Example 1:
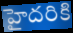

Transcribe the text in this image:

హైదరికి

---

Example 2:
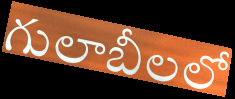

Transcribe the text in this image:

గులాబీలలో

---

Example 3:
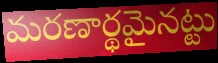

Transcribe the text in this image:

మరణార్థమైనట్టు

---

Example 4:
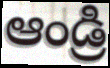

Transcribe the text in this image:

ఆండ్రి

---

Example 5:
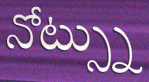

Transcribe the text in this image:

నోట్స్ను